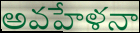
అవహేళనా